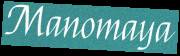
Manomaya